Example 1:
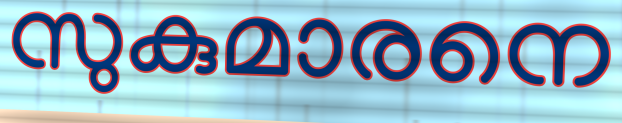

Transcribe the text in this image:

സുകുമാരനെ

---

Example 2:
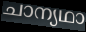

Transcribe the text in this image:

ചാന്യഥാ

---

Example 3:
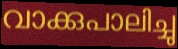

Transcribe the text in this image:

വാക്കുപാലിച്ചു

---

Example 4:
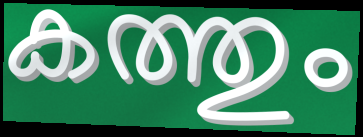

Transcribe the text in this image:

കത്തും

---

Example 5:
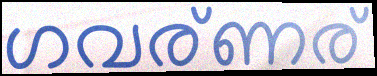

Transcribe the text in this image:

ഗവര്ണര്